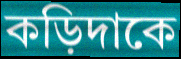
কড়িদাকে